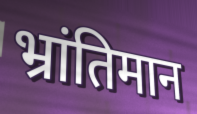
भ्रांतिमान